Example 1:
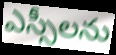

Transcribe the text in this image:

ఎస్సీలను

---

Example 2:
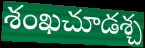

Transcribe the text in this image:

శంఖచూడశ్చ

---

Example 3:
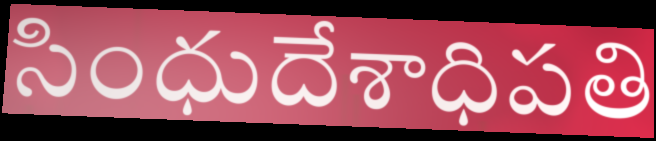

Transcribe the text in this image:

సింధుదేశాధిపతి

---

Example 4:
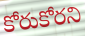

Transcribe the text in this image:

కోరుకోరని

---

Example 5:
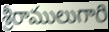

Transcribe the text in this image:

శ్రీరాములుగారి